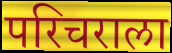
परिचराला